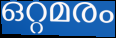
ഒറ്റമരം